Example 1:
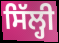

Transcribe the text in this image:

ਸਿੱਲ੍ਹੀ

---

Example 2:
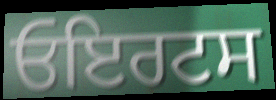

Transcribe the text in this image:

ਓਇਰਟਸ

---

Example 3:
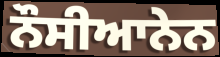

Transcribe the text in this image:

ਨੌਸੀਆਨੇਨ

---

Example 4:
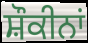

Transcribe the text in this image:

ਸ਼ੌਕੀਨਾਂ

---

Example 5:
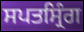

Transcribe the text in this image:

ਸਪਤਸ੍ਰਿੰਗ